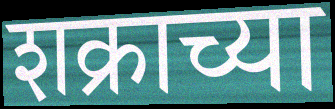
शक्राच्या